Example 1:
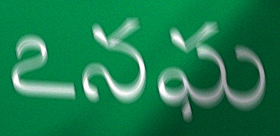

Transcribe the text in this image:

ఽనఘ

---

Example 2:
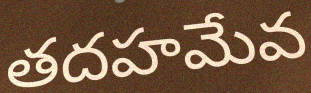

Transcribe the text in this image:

తదహమేవ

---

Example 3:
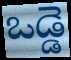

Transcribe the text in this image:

ఒడ్డె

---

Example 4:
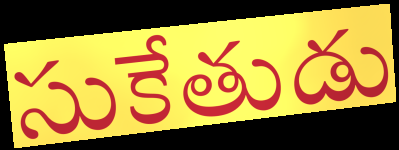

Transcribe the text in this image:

సుకేతుడు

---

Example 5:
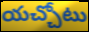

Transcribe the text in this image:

యచ్చోటు